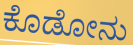
ಕೊಡೋನು